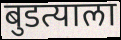
बुडत्याला